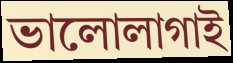
ভালোলাগাই